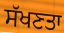
ਸੱਖਣਤਾ